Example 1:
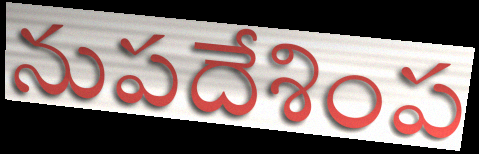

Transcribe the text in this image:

నుపదేశింప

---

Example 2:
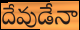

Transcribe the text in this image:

దేవుడేనా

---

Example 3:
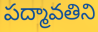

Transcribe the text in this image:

పద్మావతిని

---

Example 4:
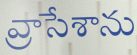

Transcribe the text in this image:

వ్రాసేశాను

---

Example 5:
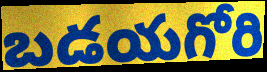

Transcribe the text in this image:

బడయగోరి